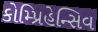
કોમ્પ્રિહેન્સિવ